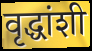
वृद्धांशी